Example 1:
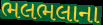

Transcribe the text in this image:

ભલભલાના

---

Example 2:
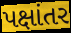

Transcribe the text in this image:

પક્ષાંતર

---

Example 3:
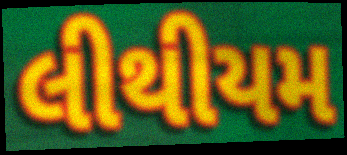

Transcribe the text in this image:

લીથીયમ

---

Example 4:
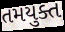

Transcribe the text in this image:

તમયુક્ત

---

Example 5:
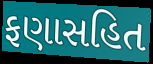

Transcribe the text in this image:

ફણાસહિત